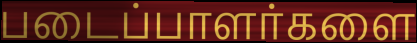
படைப்பாளர்களை